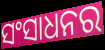
ସଂସାଧନର